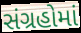
સંગ્રહોમાં